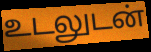
உடலுடன்